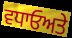
ਵਧਾਓਅਤੇ